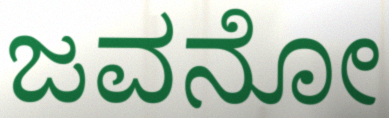
ಜವನೋ